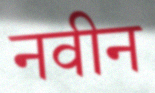
नवीन